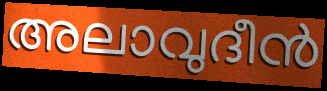
അലാവുദീൻ